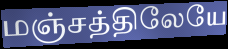
மஞ்சத்திலேயே